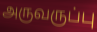
அருவருப்பு